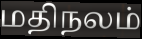
மதிநலம்